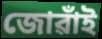
জোৱাঁই